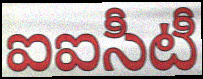
ఐఐసీటీ